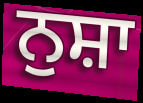
ਨੁਸ਼ਾ